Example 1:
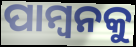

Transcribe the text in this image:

ପାମ୍ବନକୁ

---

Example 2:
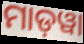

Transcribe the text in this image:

ମାଡ଼ୱା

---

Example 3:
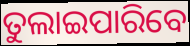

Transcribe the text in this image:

ତୁଲାଇପାରିବେ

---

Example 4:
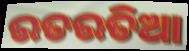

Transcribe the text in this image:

ରତରତିଆ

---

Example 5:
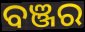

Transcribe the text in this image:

ବଞ୍ଜର